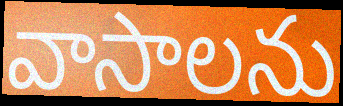
వాసాలను